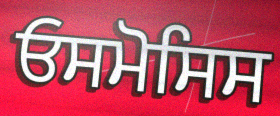
ਓਸਮੋਸਿਸ